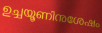
ഉച്ചയൂണിനുശേഷം